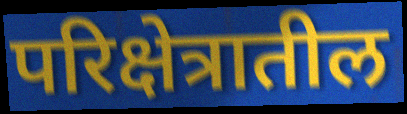
परिक्षेत्रातील